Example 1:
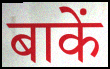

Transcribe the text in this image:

बाकें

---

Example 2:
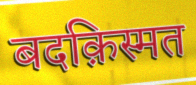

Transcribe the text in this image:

बदक़िस्मत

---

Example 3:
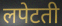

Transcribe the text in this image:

लपेटती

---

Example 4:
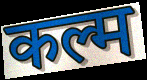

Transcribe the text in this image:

कल्म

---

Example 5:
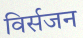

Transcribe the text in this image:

विर्सजन